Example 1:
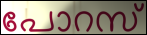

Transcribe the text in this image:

പോറസ്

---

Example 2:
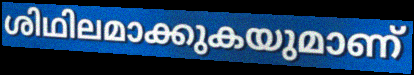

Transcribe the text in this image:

ശിഥിലമാക്കുകയുമാണ്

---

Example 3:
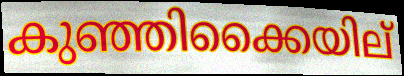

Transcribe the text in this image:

കുഞ്ഞിക്കൈയില്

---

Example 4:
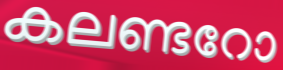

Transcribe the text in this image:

കലണ്ടറോ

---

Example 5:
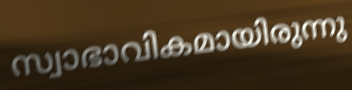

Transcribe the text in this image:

സ്വാഭാവികമായിരുന്നു